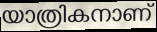
യാത്രികനാണ്